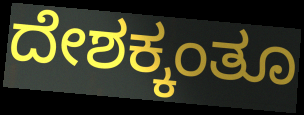
ದೇಶಕ್ಕಂತೂ